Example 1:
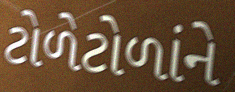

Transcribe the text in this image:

ટોળેટોળાંને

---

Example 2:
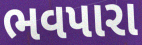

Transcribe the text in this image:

ભવપારા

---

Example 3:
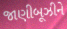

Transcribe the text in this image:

જાણીબૂઝીને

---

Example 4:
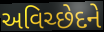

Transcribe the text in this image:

અવિચ્છેદને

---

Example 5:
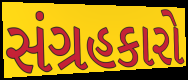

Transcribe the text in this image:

સંગ્રહકારો